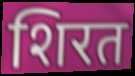
शिरत